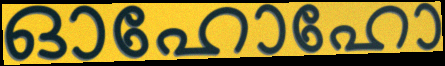
ഓഹോഹോ